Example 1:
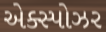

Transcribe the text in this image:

એક્સ્પોઝર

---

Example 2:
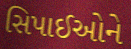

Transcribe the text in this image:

સિપાઈઓને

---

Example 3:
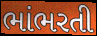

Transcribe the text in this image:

ભાંભરતી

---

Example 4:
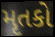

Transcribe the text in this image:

મૃતકો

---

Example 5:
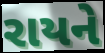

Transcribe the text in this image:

રાયને